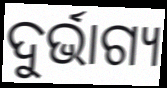
ଦୁର୍ଭାଗ୍ୟ